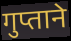
गुप्ताने